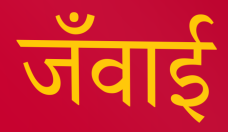
जँवाई